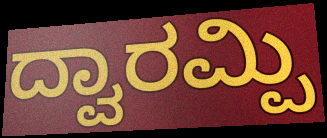
ದ್ವಾರಮ್ಪಿ